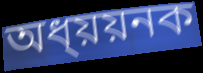
অধ্য়য়নক